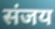
संजय